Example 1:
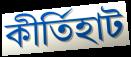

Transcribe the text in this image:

কীর্তিহাট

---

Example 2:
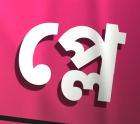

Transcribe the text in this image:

প্লে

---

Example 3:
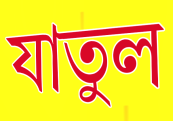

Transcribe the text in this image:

যাতুল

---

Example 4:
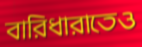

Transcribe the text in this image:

বারিধারাতেও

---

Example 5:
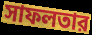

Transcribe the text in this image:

সাফলতার